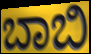
ಬಾಬಿ